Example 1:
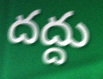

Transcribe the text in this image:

దద్దు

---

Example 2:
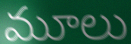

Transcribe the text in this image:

మూలు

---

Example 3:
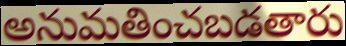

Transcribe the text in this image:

అనుమతించబడతారు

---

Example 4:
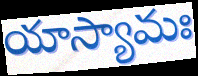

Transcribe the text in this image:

యాస్యామః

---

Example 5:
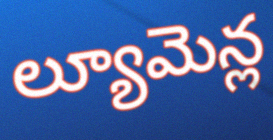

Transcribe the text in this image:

ల్యూమెన్ల